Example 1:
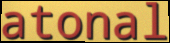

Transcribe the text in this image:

atonal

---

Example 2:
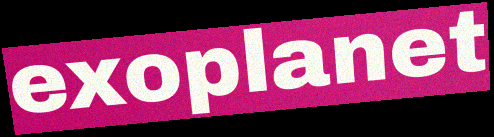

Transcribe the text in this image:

exoplanet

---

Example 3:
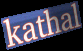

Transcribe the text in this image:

kathal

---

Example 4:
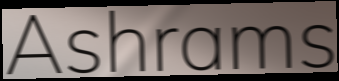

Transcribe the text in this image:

Ashrams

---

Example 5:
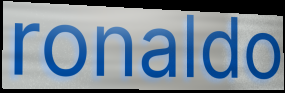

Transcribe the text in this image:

ronaldo